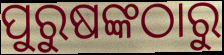
ପୁରୁଷଙ୍କଠାରୁ